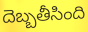
దెబ్బతీసింది